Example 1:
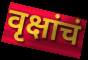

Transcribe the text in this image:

वृक्षांचं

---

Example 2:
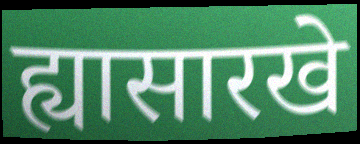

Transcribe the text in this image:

ह्यासारखे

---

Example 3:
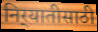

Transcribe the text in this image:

निर्यातीसाठी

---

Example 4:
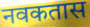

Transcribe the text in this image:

नवकतास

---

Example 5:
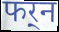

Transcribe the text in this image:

फर्न